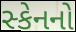
સ્કેનનો